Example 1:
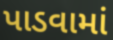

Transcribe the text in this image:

પાડવામાં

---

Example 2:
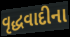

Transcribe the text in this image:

વૃદ્ધવાદીના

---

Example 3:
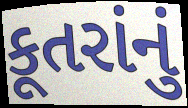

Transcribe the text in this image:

કૂતરાંનું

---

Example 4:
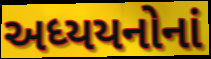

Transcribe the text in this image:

અધ્યયનોનાં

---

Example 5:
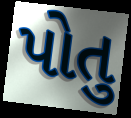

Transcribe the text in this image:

પોતુ